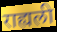
राह्यली